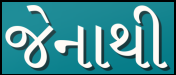
જેનાથી